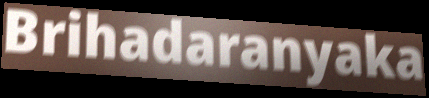
Brihadaranyaka